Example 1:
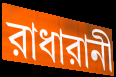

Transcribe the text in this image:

রাধারানী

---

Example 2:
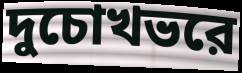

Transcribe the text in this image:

দুচোখভরে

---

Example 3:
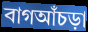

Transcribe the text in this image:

বাগআঁচড়া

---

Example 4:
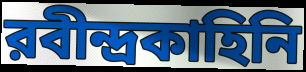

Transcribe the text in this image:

রবীন্দ্রকাহিনি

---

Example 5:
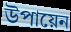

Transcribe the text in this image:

উপায়েন